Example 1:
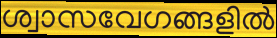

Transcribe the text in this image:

ശ്വാസവേഗങ്ങളിൽ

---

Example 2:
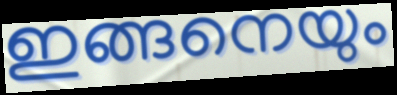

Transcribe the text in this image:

ഇങ്ങനെയും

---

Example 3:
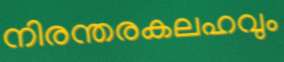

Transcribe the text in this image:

നിരന്തരകലഹവും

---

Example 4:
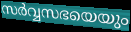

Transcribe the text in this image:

സർവ്വസഭയെയും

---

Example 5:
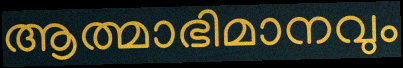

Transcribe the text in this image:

ആത്മാഭിമാനവും